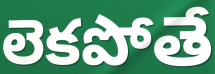
లెకపోతే